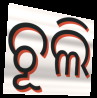
ଚୂଲି